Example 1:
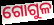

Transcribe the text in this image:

ଗୋଗୁଳ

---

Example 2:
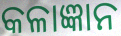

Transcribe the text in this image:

କଳାଜ୍ଞାନ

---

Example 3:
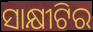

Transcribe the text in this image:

ସାକ୍ଷୀଟିର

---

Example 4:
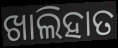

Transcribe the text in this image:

ଖାଲିହାତ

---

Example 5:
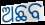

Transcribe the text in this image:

ଅଛବ